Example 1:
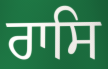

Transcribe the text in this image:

ਰਾਸਿ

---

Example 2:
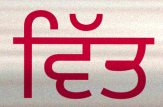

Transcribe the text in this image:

ਵਿੱਤ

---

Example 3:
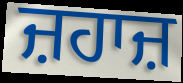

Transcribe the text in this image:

ਜ਼ਹਾਜ਼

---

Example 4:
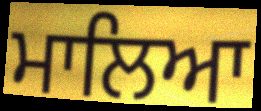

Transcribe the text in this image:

ਮਾਲਿਆ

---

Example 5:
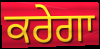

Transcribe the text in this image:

ਕਰੇਗਾ